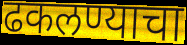
ढकलण्याचा